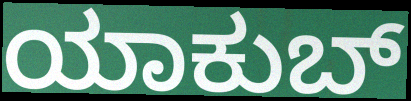
ಯಾಕುಬ್